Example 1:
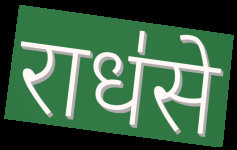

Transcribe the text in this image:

राध॑से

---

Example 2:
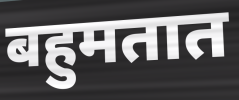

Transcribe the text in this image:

बहुमतात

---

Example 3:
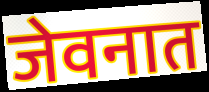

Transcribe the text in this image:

जेवनात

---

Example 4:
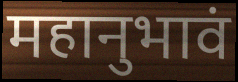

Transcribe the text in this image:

महानुभावं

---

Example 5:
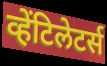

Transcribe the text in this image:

व्हेंटिलेटर्स